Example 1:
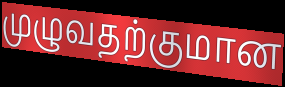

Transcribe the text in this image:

முழுவதற்குமான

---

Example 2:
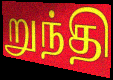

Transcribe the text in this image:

றுந்தி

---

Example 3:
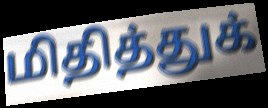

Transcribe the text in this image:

மிதித்துக்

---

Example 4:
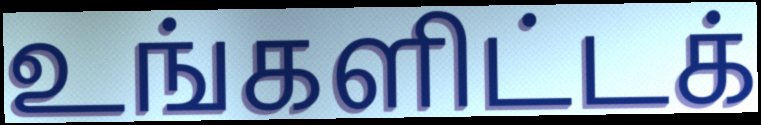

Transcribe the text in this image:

உங்களிட்டக்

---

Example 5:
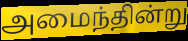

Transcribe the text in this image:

அமைந்தின்று